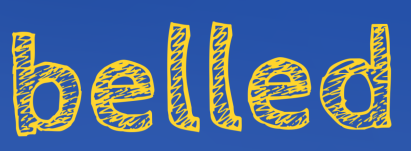
belled